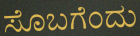
ಸೊಬಗೆಂದು